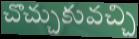
చొచ్చుకువచ్చి